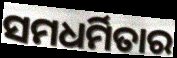
ସମଧର୍ମିତାର